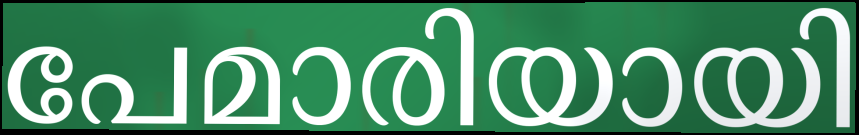
പേമാരിയായി